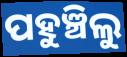
ପହୁଞ୍ଚିଲୁ